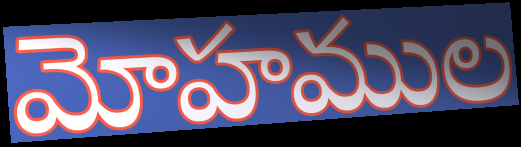
మోహముల